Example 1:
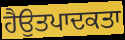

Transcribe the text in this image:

ਹੈਉਤਪਾਦਕਤਾ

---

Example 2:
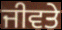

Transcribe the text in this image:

ਜੀਵਤੇ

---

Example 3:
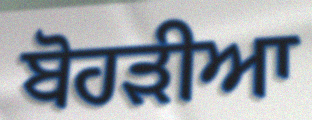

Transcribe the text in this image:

ਬੋਹੜੀਆ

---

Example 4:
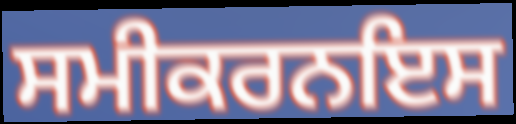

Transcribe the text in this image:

ਸਮੀਕਰਨਇਸ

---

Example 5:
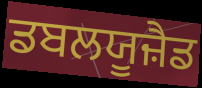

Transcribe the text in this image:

ਡਬਲਯੂਜ਼ੈਡ